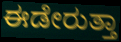
ಈಡೇರುತ್ತಾ